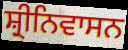
ਸ਼੍ਰੀਨਿਵਾਸਨ